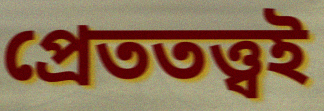
প্রেততত্ত্বই